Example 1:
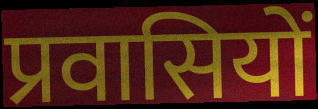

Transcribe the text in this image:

प्रवासियों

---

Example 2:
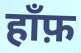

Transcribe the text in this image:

हाँफ़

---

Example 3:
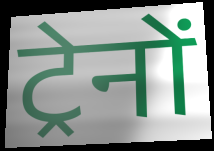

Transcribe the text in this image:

ट्रेनों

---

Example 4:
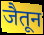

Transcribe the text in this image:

जैतून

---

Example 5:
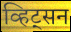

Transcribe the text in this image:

व्हिट्सन